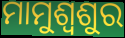
ମାମୁଶ୍ବଶୁର